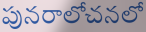
పునరాలోచనలో